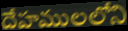
దేహములలోని